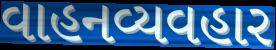
વાહનવ્યવહાર